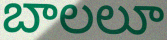
బాలలూ